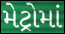
મેટ્રોમાં